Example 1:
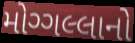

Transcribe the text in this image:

મોગ્ગલ્લાનો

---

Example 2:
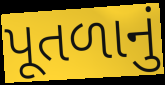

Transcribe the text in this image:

પૂતળાનું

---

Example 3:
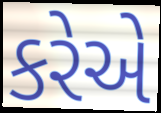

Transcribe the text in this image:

કરેએ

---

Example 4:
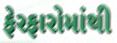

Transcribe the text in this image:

ફેરફારોમાંથી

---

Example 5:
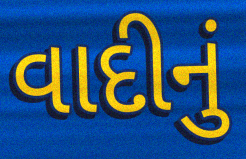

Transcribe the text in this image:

વાદીનું